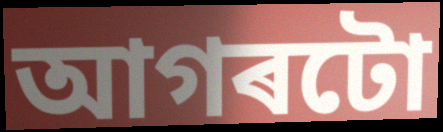
আগৰটো